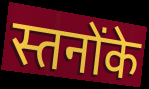
स्तनोंके